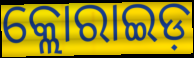
କ୍ଲୋରାଇଡ଼